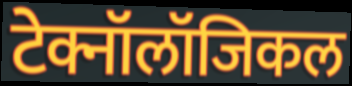
टेक्नॉलॉजिकल